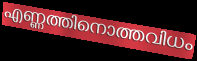
എണ്ണത്തിനൊത്തവിധം